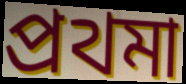
প্রথমা